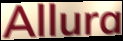
Allura